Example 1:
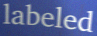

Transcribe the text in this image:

labeled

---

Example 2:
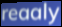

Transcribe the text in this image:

reaaly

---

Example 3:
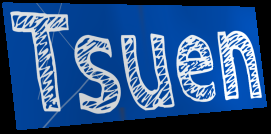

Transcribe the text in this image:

Tsuen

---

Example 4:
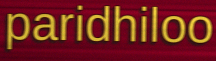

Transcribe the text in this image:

paridhiloo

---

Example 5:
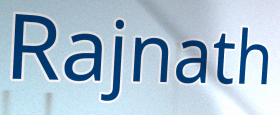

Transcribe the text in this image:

Rajnath